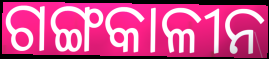
ଗଙ୍ଗକାଳୀନ